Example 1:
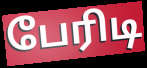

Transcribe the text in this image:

பேரிடி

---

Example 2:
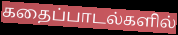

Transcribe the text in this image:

கதைப்பாடல்களில்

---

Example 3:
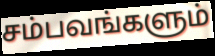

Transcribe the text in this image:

சம்பவங்களும்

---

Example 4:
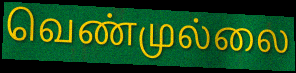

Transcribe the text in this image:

வெண்முல்லை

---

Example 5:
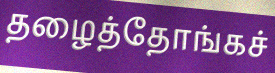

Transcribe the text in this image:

தழைத்தோங்கச்